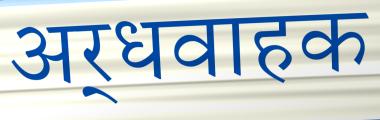
अर्धवाहक